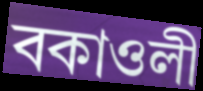
বকাওলী